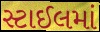
સ્ટાઈલમાં